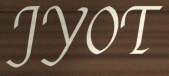
JYOT